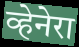
व्हेनेरा